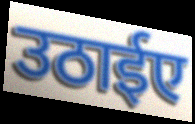
उठाईए